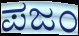
ಪಜಂ